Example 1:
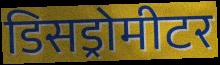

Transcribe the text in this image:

डिसड्रोमीटर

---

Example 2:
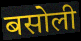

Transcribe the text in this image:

बसोली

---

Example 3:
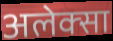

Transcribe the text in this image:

अलेक्‍सा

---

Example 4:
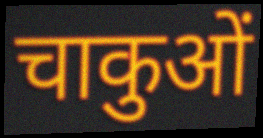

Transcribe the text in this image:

चाकुओं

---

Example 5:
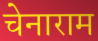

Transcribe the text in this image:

चेनाराम